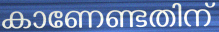
കാണേണ്ടതിന്